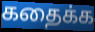
கதைக்க